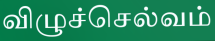
விழுச்செல்வம்